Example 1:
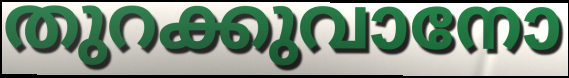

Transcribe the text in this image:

തുറക്കുവാനോ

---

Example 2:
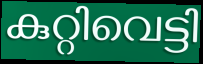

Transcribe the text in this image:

കുറ്റിവെട്ടി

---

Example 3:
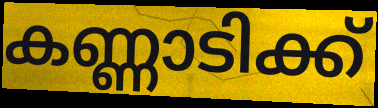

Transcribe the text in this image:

കണ്ണാടിക്ക്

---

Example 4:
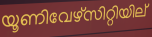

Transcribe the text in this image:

യൂണിവേഴ്സിറ്റിയില്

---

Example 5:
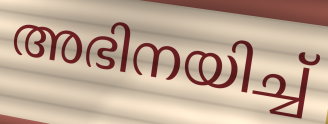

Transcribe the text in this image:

അഭിനയിച്ച്